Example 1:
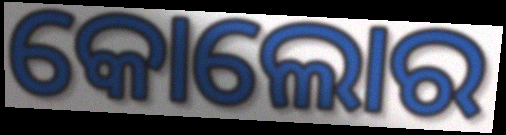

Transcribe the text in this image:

କୋଲୋର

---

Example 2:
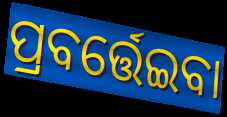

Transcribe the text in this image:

ପ୍ରବର୍ତ୍ତେଇବା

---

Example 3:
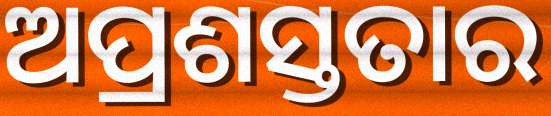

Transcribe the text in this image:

ଅପ୍ରଶସ୍ତତାର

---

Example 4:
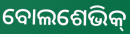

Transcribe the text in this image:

ବୋଲଶେଭିକ୍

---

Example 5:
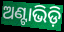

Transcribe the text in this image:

ଅଣ୍ଟାଭିଡ଼ି